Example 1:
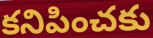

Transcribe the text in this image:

కనిపించకు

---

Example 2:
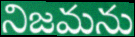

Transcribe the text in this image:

నిజమను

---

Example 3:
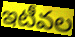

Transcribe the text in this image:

ఇటీవల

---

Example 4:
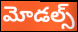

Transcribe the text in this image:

మోడల్స్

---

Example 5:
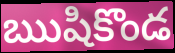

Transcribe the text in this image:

ఋషికొండ